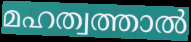
മഹത്വത്താൽ